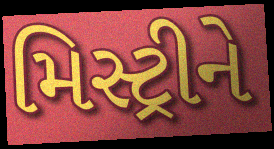
મિસ્ટ્રીને